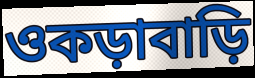
ওকড়াবাড়ি